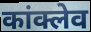
कांक्लेव